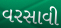
વરસાવી